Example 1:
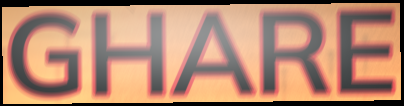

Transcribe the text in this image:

GHARE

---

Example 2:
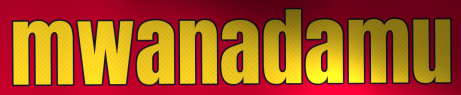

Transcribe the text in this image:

mwanadamu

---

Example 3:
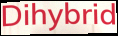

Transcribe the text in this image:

Dihybrid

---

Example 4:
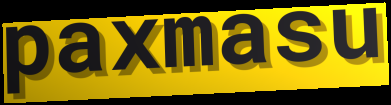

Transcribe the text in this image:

paxmasu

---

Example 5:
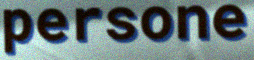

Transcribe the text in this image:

persone